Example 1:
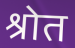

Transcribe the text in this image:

श्रोत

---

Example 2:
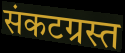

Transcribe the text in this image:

संकटग्रस्‍त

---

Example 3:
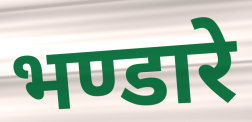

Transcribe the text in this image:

भण्डारे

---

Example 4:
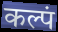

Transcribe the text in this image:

कल्पं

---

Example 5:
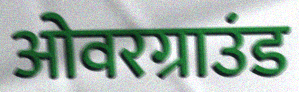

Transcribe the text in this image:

ओवरग्राउंड